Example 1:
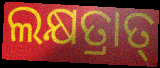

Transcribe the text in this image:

ଲକ୍ଷତ୍ରାତ୍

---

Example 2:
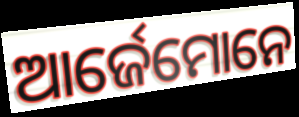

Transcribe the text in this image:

ଆର୍ଜେମୋନେ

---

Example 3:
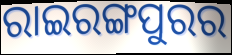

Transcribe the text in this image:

ରାଇରଙ୍ଗପୁରର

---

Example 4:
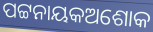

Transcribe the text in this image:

ପଟ୍ଟନାୟକଅଶୋକ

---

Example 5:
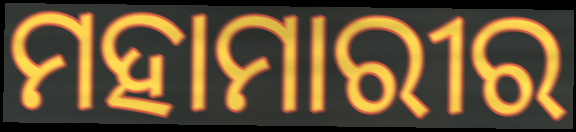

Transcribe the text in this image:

ମହାମାରୀର